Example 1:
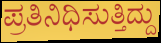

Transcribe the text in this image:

ಪ್ರತಿನಿಧಿಸುತ್ತಿದ್ದು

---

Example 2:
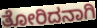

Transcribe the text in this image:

ತೋರಿದನಾಗಿ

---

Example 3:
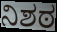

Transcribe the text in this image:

ನಿಶಠ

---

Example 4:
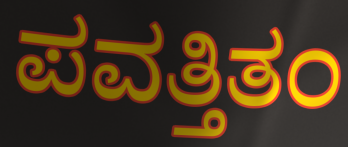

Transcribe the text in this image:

ಪವತ್ತಿತಂ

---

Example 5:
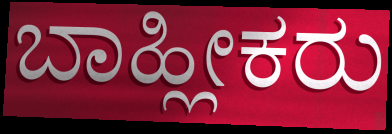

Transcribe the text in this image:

ಬಾಹ್ಲೀಕರು